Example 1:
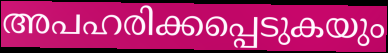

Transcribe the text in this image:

അപഹരിക്കപ്പെടുകയും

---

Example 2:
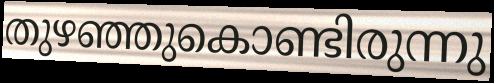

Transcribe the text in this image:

തുഴഞ്ഞുകൊണ്ടിരുന്നു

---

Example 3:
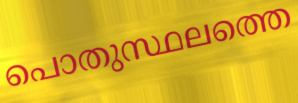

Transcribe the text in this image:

പൊതുസ്ഥലത്തെ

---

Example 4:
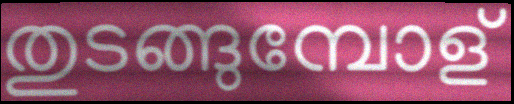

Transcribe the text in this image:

തുടങ്ങുമ്പോള്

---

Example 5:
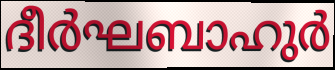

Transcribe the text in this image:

ദീർഘബാഹുർ